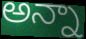
అన్నా